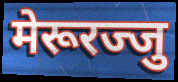
मेरूरज्जु